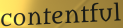
contentful